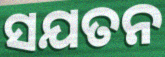
ସଯତନ